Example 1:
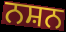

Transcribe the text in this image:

ਨਸ਼ਨ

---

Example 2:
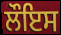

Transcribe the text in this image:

ਲੌਇਸ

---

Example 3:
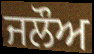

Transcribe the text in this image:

ਜਲੌਅ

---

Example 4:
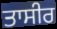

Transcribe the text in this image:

ਤਾਸੀਰ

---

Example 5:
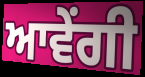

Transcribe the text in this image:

ਆਵੇਂਗੀ